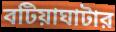
বটিয়াঘাটার